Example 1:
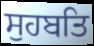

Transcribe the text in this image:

ਸੁਹਬਤਿ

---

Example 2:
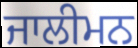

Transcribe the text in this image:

ਜਾਲੀਮਨ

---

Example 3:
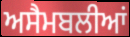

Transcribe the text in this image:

ਅਸੈਮਬਲੀਆਂ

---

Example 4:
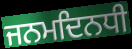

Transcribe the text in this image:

ਜਨਮਦਿਨਧੀ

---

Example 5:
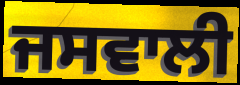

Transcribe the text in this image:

ਜਸਵਾਲੀ